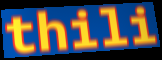
thili